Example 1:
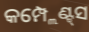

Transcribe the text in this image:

କମ୍ପ୍ଲେଣ୍ଟ୍‌ସ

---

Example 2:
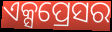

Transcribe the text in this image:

ଏକ୍ସପ୍ରେସର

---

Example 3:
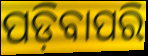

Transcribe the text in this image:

ପଡ଼ିବାପରି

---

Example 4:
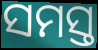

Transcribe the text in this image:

ସମସ୍ତ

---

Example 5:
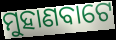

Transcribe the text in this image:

ମୁହାଣବାଟେ